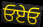
ਓਏਓ